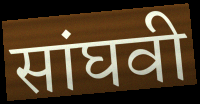
सांघवी